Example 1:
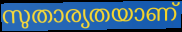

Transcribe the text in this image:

സുതാര്യതയാണ്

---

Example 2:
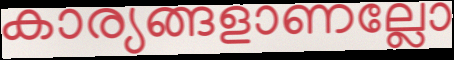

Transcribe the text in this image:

കാര്യങ്ങളാണല്ലോ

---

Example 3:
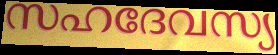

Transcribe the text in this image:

സഹദേവസ്യ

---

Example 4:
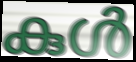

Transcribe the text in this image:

കുൾ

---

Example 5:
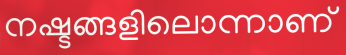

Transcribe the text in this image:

നഷ്ടങ്ങളിലൊന്നാണ്